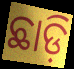
ଛାଡ଼ି